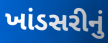
ખાંડસરીનું